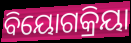
ବିୟୋଗକ୍ରିୟା